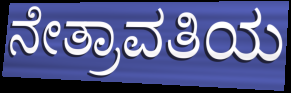
ನೇತ್ರಾವತಿಯ